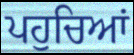
ਪਹੁਚਿਆਂ